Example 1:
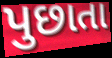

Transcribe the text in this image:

પુછાતા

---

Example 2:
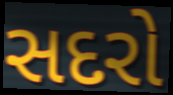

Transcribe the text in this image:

સદરો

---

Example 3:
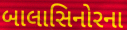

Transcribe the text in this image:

બાલાસિનોરના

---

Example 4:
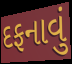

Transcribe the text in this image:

દફનાવું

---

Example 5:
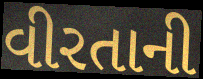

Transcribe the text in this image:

વીરતાની